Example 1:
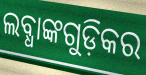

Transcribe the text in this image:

ଲବ୍ଧାଙ୍କଗୁଡ଼ିକର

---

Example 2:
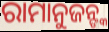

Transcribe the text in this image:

ରାମାନୁଜନ୍ଙ୍କ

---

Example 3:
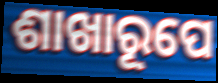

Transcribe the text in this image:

ଶାଖାରୂପେ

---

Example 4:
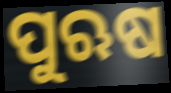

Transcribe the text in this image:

ପୁଋଷ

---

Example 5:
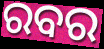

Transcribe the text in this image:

ରବର